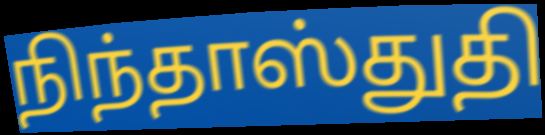
நிந்தாஸ்துதி